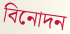
বিনোদন